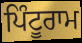
ਪਿੰਟੂਰਾਮ